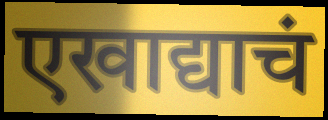
एखाद्याचं